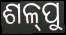
ଶଳ୍‍ପୁ